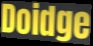
Doidge